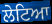
ਲੇਟਿਆ